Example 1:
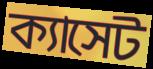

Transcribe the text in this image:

ক্যাসেট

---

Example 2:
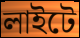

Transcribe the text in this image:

লাইটে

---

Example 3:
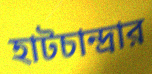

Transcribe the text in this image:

হাটচান্দ্রার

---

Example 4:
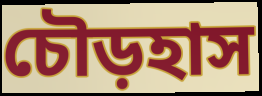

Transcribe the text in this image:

চৌড়হাস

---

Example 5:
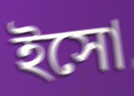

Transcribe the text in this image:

ইসো